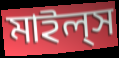
মাইল্‌স